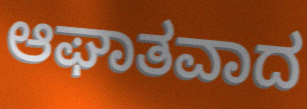
ಆಘಾತವಾದ